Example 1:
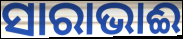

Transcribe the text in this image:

ସାରାଭାଈ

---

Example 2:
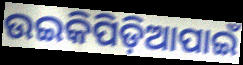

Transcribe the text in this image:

ଉଇକିପିଡ଼ିଆପାଇଁ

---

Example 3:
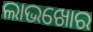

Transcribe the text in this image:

ଲାଭଖୋର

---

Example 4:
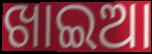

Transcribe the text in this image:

ଖାଇଆ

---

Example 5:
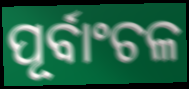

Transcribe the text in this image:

ପୂର୍ବାଂଚଳ